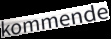
kommende